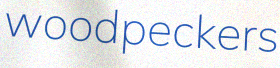
woodpeckers